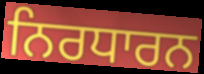
ਨਿਰਧਾਰਨ